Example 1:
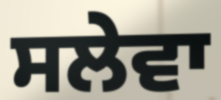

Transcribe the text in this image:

ਸਲੇਵਾ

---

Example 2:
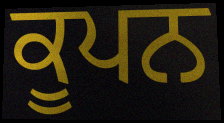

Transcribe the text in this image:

ਕੂਪਨ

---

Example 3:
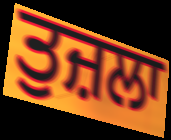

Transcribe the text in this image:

ਤੁਜ਼ਲਾ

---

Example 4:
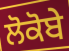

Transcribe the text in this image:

ਲੋਕੋਬੇ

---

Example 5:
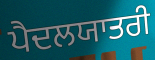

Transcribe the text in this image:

ਪੈਦਲਯਾਤਰੀ